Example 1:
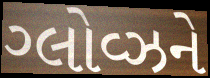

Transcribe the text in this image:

ગ્લોવ્ઝને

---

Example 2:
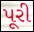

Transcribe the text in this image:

પૂરી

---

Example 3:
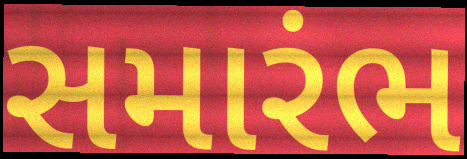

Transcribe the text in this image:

સમારંભ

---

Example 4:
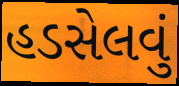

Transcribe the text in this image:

હડસેલવું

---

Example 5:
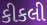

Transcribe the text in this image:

કીકલી